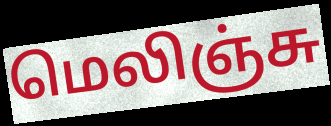
மெலிஞ்சு